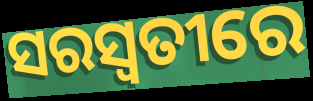
ସରସ୍ୱତୀରେ